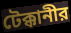
টেক্কানীর